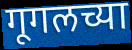
गूगलच्या